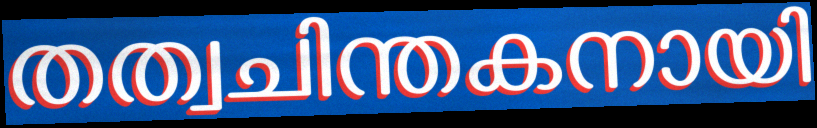
തത്വചിന്തകനായി